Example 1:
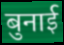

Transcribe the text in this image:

बुनाई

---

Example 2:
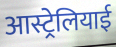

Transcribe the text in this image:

आस्ट्रेलियाई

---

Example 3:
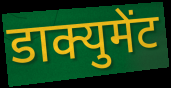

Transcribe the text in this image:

डाक्युमेंट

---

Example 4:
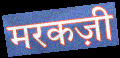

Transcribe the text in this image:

मरकज़ी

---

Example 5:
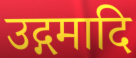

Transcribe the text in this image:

उद्गमादि